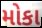
મોકા